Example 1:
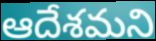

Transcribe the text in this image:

ఆదేశమని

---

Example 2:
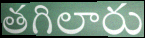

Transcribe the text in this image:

తగిలారు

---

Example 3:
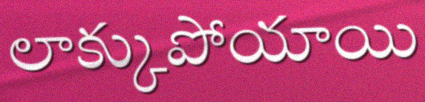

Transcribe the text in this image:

లాక్కుపోయాయి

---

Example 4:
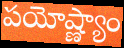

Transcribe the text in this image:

పయోష్ణ్యాం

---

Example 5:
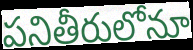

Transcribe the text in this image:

పనితీరులోనూ